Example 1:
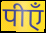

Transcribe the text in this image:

पीएँ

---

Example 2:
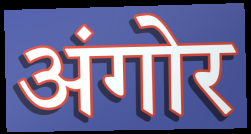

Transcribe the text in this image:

अंगोर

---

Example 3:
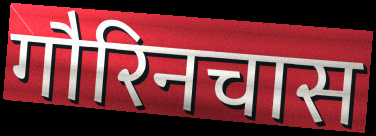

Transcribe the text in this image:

गौरिनचास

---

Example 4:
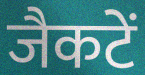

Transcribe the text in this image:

जैकटें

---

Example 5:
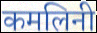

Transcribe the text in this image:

कमलिनी